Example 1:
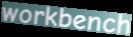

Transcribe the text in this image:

workbench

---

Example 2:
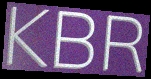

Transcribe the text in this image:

KBR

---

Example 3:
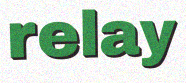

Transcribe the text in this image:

relay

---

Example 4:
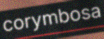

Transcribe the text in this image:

corymbosa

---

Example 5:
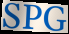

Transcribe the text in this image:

SPG